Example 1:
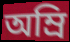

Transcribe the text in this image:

অম্রি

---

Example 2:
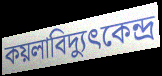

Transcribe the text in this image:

কয়লাবিদ্যুৎকেন্দ্র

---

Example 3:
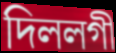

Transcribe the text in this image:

দিললগী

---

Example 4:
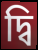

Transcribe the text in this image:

দ্বি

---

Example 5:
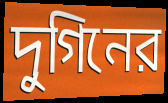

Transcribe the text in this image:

দুগিনের